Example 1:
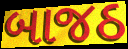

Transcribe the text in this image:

બાજઠ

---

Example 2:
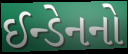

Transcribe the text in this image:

ઈન્ડેનનો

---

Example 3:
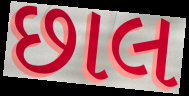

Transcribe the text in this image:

છાલ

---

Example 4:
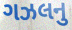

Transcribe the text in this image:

ગઝલનુ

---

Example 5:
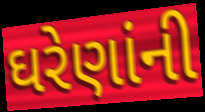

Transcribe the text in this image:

ઘરેણાંની